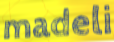
madeli